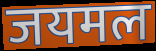
जयमल